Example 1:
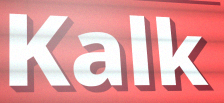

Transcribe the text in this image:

Kalk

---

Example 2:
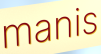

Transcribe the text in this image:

manis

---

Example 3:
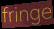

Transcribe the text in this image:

fringe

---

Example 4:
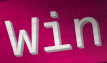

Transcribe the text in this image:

Win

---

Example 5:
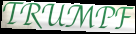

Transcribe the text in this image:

TRUMPF